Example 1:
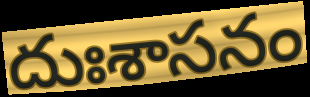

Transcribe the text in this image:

దుఃశాసనం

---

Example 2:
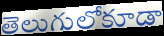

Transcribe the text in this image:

తెలుగులోకూడా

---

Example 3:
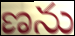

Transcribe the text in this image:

ణను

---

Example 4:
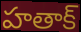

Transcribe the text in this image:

హతాక్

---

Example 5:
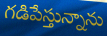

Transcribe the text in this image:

గడిపేస్తున్నాను